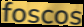
foscos